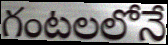
గంటలలోనే